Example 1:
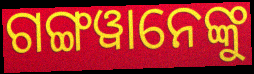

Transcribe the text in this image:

ଗଙ୍ଗୱାନେଙ୍କୁ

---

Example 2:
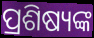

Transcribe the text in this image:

ପ୍ରଶିଷ୍ୟଙ୍କ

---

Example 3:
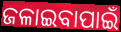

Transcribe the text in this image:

ଜଳାଇବାପାଇଁ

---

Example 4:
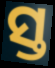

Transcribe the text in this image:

ସ୍ତ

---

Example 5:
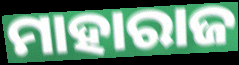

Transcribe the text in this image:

ମାହାରାଜ